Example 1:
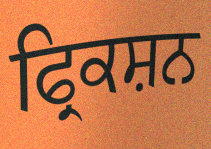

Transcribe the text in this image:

ਫ੍ਰਿਕਸ਼ਨ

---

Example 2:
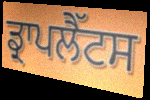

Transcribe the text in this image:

ਡ੍ਰਾਪਲੈੱਟਸ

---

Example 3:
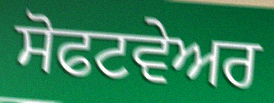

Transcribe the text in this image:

ਸੋਫਟਵੇਅਰ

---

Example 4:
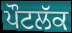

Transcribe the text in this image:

ਪੌਟਲੱਕ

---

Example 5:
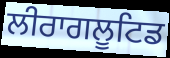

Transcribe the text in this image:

ਲੀਰਾਗਲੂਟਿਡ